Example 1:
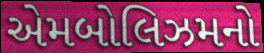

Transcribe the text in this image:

એમબોલિઝમનો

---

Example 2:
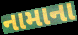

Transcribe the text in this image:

નામાના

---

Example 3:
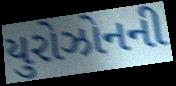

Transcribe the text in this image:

યુરોઝોનની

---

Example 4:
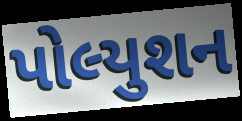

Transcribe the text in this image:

પોલ્યુશન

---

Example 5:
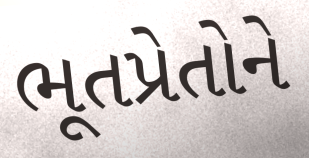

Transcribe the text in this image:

ભૂતપ્રેતોને